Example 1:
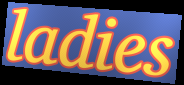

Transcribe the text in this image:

ladies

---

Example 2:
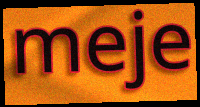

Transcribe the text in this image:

meje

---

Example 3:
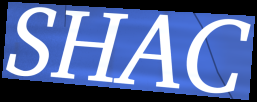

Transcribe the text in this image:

SHAC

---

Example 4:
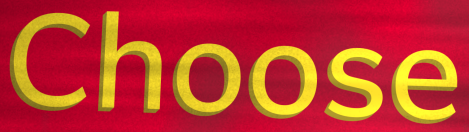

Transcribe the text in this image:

Choose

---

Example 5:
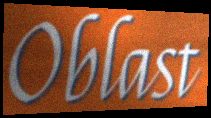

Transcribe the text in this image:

Oblast